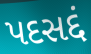
પદસદ્દં